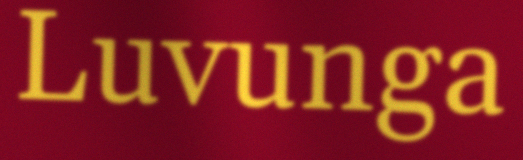
Luvunga